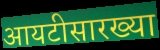
आयटीसारख्या